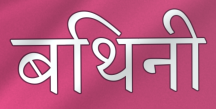
बथिनी